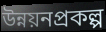
উন্নয়নপ্রকল্প